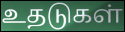
உதடுகள்